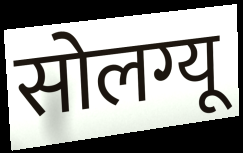
सोलग्यू